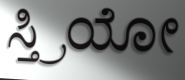
ಸ್ತ್ರಿಯೋ